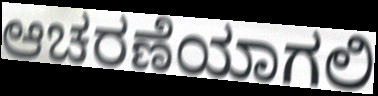
ಆಚರಣೆಯಾಗಲಿ